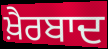
ਖ਼ੈਰਬਾਦ